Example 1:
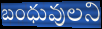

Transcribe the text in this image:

బంధువులని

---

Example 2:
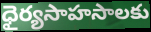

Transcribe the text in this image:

ధైర్యసాహసాలకు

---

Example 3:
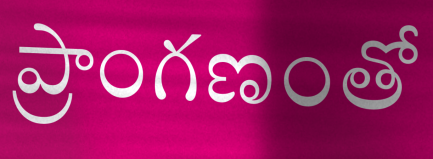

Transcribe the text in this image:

ప్రాంగణంతో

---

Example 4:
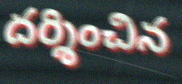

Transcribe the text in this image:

దర్శించిన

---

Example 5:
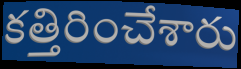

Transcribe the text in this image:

కత్తిరించేశారు